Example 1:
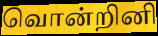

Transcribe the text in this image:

வொன்றினி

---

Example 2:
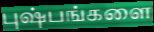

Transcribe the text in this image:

புஷ்பங்களை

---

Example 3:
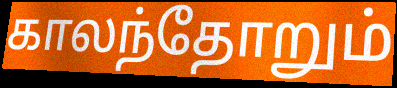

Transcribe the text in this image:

காலந்தோறும்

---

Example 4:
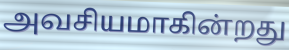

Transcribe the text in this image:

அவசியமாகின்றது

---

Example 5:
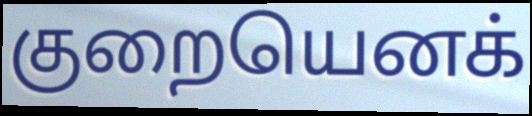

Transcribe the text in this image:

குறையெனக்